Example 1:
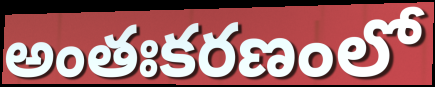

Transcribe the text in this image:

అంతఃకరణంలో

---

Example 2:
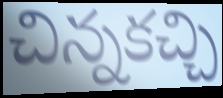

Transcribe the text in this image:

చిన్నకచ్చి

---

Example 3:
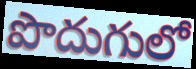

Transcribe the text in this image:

పొదుగులో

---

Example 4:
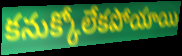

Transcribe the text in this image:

కనుక్కోలేకపోయాయి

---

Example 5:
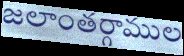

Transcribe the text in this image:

జలాంతర్గాముల